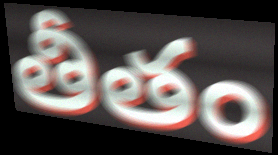
తీతం